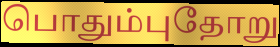
பொதும்புதோறு